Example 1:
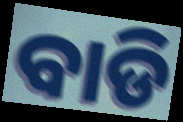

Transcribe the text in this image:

ବାଡି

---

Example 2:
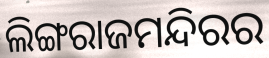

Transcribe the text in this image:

ଲିଙ୍ଗରାଜମନ୍ଦିରର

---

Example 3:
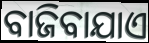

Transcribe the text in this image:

ବାଜିବାଯାଏ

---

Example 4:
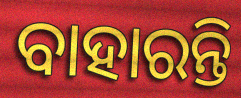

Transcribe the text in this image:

ବାହାରନ୍ତି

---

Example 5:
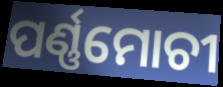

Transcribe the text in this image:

ପର୍ଣ୍ଣମୋଚୀ